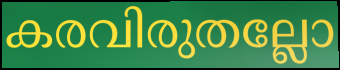
കരവിരുതല്ലോ